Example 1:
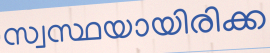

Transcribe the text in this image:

സ്വസ്ഥയായിരിക്ക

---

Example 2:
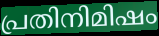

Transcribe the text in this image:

പ്രതിനിമിഷം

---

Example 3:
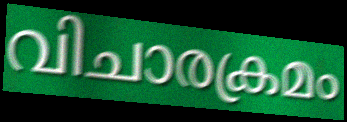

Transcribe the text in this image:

വിചാരക്രമം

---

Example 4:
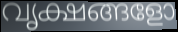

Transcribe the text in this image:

വൃക്ഷങ്ങളോ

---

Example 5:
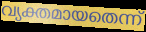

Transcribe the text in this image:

വ്യക്തമായതെന്ന്